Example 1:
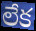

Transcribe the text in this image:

లేక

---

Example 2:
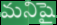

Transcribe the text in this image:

మనిషై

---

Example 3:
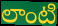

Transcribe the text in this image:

లాంటి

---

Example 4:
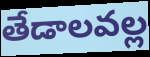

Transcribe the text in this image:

తేడాలవల్ల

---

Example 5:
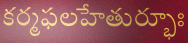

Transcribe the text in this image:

కర్మఫలహేతుర్భూః